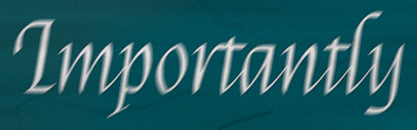
Importantly